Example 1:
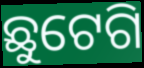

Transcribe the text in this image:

ଛୁଟେଗି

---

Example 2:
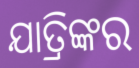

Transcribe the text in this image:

ଯାତ୍ରିଙ୍କର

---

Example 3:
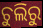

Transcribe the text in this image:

ଚୁଲିରୁ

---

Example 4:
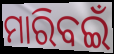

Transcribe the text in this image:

ମାରିବଇଁ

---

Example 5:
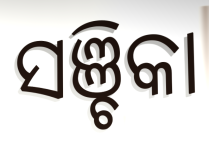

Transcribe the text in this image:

ସଞ୍ଚିକା